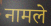
नामले